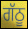
ਗੱਠੂ